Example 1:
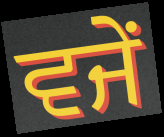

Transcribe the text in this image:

ਵਜੇਂ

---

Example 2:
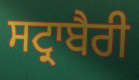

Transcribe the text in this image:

ਸਟ੍ਰਾਬੈਰੀ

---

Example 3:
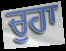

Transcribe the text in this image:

ਚੁਹਾ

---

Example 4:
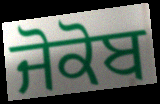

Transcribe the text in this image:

ਜੋਕੋਬ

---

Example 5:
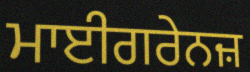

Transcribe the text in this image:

ਮਾਈਗਰੇਨਜ਼